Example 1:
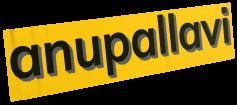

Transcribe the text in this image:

anupallavi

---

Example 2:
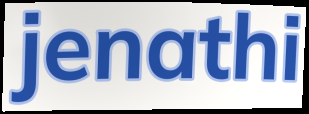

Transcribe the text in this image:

jenathi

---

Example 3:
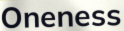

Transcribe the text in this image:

Oneness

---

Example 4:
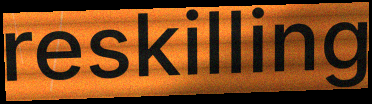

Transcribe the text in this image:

reskilling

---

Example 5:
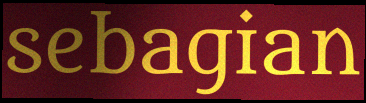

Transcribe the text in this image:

sebagian